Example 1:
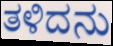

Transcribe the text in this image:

ತಳಿದನು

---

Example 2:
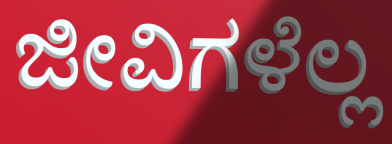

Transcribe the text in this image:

ಜೀವಿಗಳೆಲ್ಲ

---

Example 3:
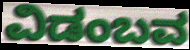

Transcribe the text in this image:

ವಿಡಂಬವ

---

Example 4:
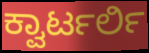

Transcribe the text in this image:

ಕ್ವಾರ್ಟರ್ಲಿ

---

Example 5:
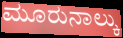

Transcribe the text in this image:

ಮೂರುನಾಲ್ಕು